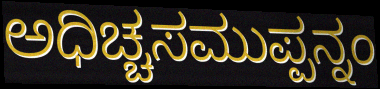
ಅಧಿಚ್ಚಸಮುಪ್ಪನ್ನಂ